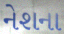
નેશના